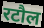
रटौल